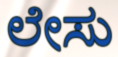
ಲೇಸು